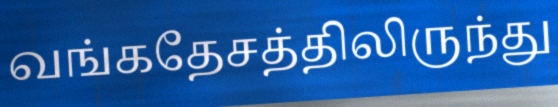
வங்கதேசத்திலிருந்து